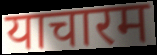
याचारम